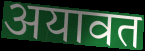
अयावत